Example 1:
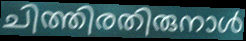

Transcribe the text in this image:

ചിത്തിരതിരുനാൾ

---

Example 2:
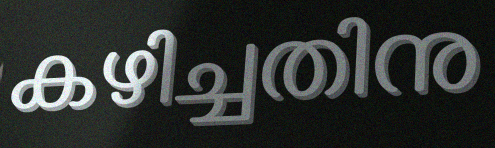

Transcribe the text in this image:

കഴിച്ചതിനു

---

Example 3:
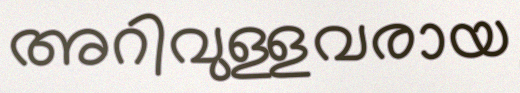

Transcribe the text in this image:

അറിവുള്ളവരായ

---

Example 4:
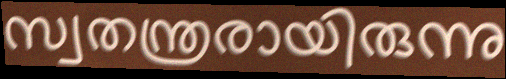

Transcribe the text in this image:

സ്വതന്ത്രരായിരുന്നു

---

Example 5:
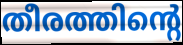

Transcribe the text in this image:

തീരത്തിന്റെ